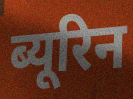
ब्यूरिन